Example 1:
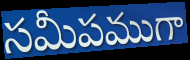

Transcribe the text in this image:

సమీపముగా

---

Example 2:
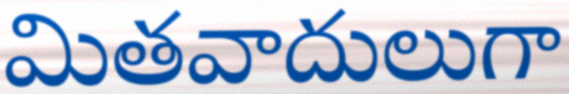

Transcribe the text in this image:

మితవాదులుగా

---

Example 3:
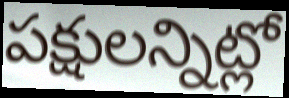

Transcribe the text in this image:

పక్షులన్నిట్లో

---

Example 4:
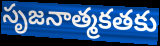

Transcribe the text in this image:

సృజనాత్మకతకు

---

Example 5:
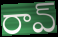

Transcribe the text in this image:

రావ్